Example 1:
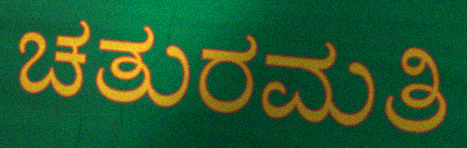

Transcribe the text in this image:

ಚತುರಮತಿ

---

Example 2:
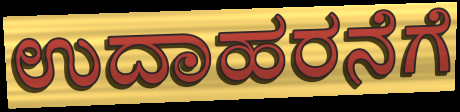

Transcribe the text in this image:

ಉದಾಹರನೆಗೆ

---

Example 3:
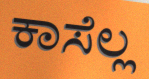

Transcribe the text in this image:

ಕಾಸೆಲ್ಲ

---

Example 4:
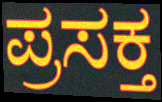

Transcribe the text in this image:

ಪ್ರಸಕ್ತ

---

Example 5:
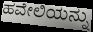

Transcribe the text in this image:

ಹವೇಲಿಯನ್ನು